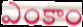
ఎంకాం